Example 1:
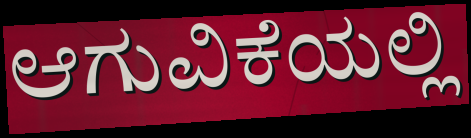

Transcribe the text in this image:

ಆಗುವಿಕೆಯಲ್ಲಿ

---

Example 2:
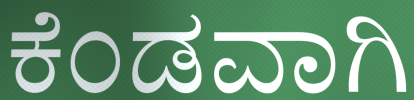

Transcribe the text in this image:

ಕೆಂಡವಾಗಿ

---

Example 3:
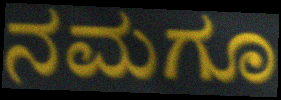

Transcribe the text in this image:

ನಮಗೂ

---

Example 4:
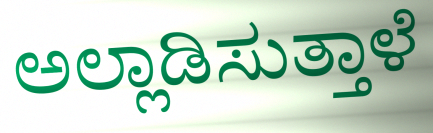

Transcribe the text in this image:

ಅಲ್ಲಾಡಿಸುತ್ತಾಳೆ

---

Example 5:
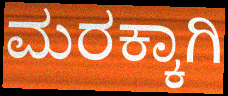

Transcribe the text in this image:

ಮರಕ್ಕಾಗಿ